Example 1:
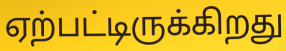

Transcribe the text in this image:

ஏற்பட்டிருக்கிறது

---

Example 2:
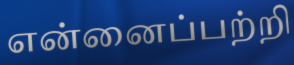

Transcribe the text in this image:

என்னைப்பற்றி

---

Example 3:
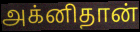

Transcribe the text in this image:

அக்னிதான்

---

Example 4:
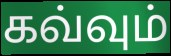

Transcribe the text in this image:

கவ்வும்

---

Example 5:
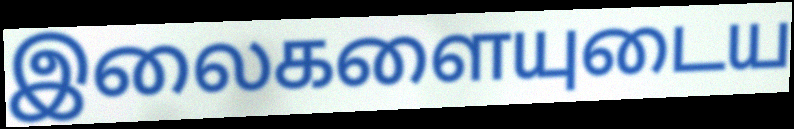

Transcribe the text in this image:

இலைகளையுடைய